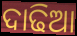
ଦାଢିଆ